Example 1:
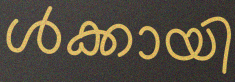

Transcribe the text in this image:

ൾക്കായി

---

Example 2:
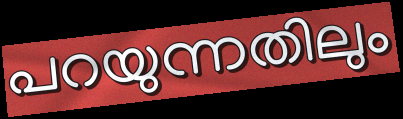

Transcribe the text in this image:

പറയുന്നതിലും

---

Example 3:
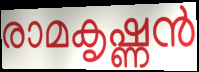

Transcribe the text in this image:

രാമകൃഷ്ണൻ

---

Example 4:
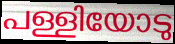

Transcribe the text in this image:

പള്ളിയോടു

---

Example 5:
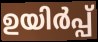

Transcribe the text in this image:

ഉയിർപ്പ്